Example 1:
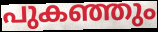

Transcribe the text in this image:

പുകഞ്ഞും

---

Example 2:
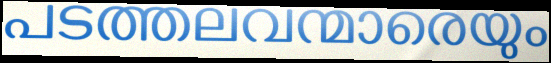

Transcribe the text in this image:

പടത്തലവന്മാരെയും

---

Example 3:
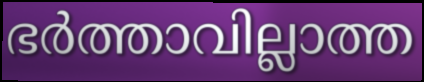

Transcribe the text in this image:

ഭർത്താവില്ലാത്ത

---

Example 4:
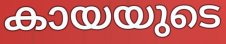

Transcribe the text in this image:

കായയുടെ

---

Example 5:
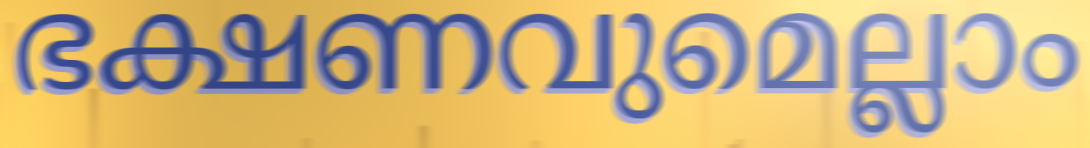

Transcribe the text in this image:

ഭക്ഷണവുമെല്ലാം